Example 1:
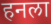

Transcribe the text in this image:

हनला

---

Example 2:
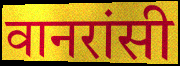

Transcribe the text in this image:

वानरांसी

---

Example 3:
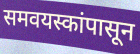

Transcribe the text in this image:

समवयस्कांपासून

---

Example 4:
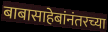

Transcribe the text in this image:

बाबासाहेबांनंतरच्या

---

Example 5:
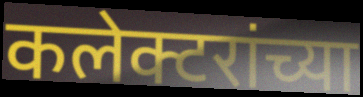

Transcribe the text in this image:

कलेक्टरांच्या